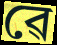
ৱে